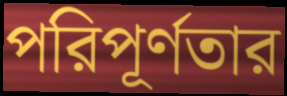
পরিপূর্ণতার